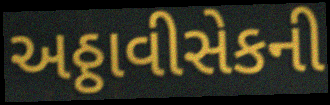
અઠ્ઠાવીસેકની